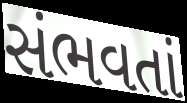
સંભવતાં